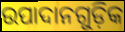
ଉପାଦାନଗୁଡ଼ିକ